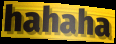
hahaha